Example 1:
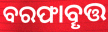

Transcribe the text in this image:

ବରଫାବୄତ୍ତ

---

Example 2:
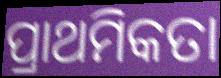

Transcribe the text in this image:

ପ୍ରାଥମିକତା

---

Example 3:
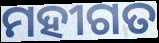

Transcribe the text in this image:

ମହୀଗତ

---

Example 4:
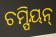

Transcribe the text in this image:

ଚମ୍ପିୟନ୍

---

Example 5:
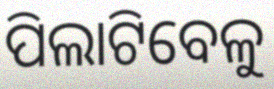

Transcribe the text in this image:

ପିଲାଟିବେଳୁ